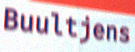
Buultjens